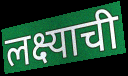
लक्ष्याची